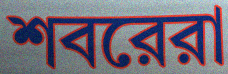
শবরেরা